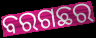
ବରଗଛର